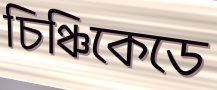
চিঞ্চিকেডে